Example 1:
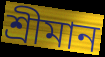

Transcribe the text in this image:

শ্রীমান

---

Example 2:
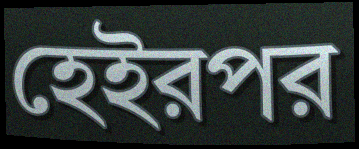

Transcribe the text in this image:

হেইরপর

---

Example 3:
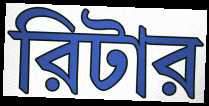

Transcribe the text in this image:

রিটার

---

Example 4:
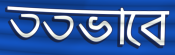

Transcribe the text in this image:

ততভাবে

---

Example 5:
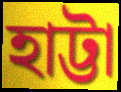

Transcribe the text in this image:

হাট্টা